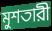
মুশতারী